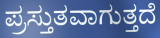
ಪ್ರಸ್ತುತವಾಗುತ್ತದೆ